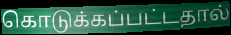
கொடுக்கப்பட்டதால்